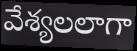
వేశ్యలలాగా